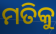
ମତିକୁ